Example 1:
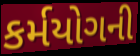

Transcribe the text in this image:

કર્મયોગની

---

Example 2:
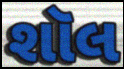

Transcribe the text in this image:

શૉલ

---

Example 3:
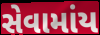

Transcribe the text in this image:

સેવામાંય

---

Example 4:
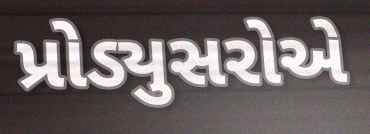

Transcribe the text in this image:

પ્રોડ્યુસરોએ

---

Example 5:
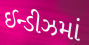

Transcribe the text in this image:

ઈન્ડીઝમાં